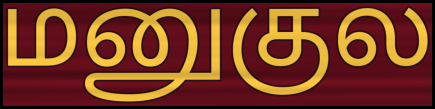
மனுகுல